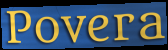
Povera